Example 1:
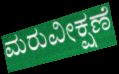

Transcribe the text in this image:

ಮರುವೀಕ್ಷಣೆ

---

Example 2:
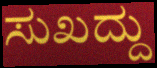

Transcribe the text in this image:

ಸುಖದ್ದು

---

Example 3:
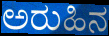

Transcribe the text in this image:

ಅರುಹಿನ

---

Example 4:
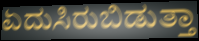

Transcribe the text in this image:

ಏದುಸಿರುಬಿಡುತ್ತಾ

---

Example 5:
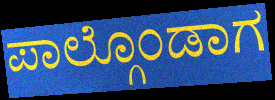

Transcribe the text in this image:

ಪಾಲ್ಗೊಂಡಾಗ